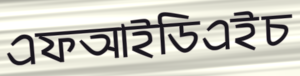
এফআইডিএইচ